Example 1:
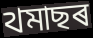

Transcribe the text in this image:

থমাছৰ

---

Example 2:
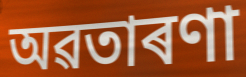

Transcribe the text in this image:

অৱতাৰণা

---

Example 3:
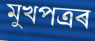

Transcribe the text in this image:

মুখপত্ৰৰ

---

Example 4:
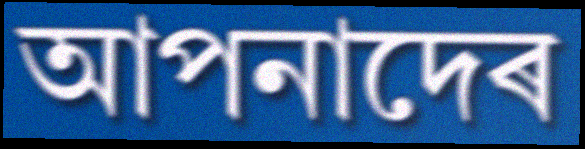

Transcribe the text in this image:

আপনাদেৰ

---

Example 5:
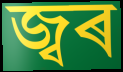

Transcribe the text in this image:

জ্বৰ